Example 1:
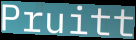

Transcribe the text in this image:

Pruitt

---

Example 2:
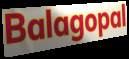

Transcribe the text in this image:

Balagopal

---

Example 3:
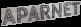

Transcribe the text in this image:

APARNET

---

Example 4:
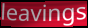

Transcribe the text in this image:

leavings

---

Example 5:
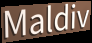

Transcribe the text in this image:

Maldiv